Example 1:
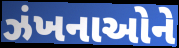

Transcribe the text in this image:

ઝંખનાઓને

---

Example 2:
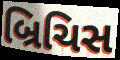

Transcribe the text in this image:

બ્રિચિસ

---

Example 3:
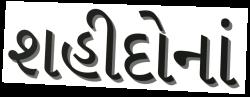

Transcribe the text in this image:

શહીદોનાં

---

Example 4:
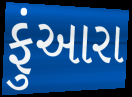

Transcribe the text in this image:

ફુંઆરા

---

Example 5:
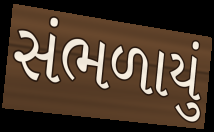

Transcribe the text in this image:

સંભળાયું